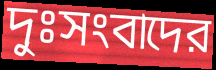
দুঃসংবাদের